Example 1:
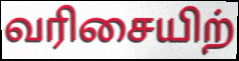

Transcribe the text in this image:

வரிசையிற்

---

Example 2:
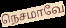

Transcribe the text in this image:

நெசமாவே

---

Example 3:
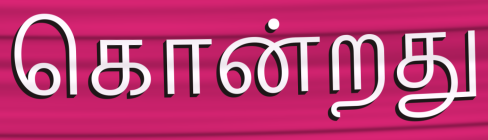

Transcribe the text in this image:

கொன்றது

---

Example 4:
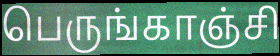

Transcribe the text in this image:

பெருங்காஞ்சி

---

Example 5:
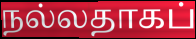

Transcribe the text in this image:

நல்லதாகப்